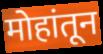
मोहांतून